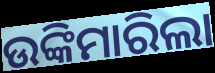
ଉଙ୍କିମାରିଲା